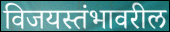
विजयस्तंभावरील